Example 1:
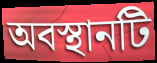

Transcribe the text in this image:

অবস্থানটি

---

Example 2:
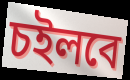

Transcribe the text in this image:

চইলবে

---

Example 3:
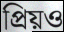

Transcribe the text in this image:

প্রিয়ও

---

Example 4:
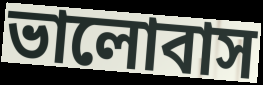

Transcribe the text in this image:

ভালোবাস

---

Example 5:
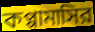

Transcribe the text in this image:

কপ্পামাসির